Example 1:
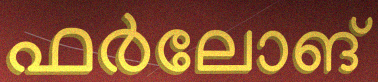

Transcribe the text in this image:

ഫർലോങ്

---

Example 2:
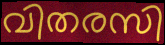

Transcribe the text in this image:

വിതരസി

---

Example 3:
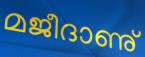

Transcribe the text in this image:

മജീദാണു്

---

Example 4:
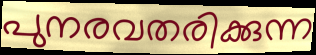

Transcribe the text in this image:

പുനരവതരിക്കുന്ന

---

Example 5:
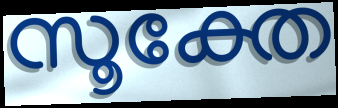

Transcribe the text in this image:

സൂക്തേ